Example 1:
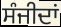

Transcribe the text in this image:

ਸੰਜੀਦਾਂ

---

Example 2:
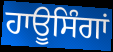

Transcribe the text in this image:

ਹਾਊਸਿੰਗਾਂ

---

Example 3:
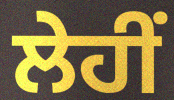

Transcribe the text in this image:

ਲੇਹੀਂ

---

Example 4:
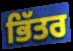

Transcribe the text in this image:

ਭਿੱਤਰ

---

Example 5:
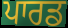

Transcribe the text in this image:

ਪਾਰਡ